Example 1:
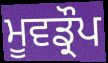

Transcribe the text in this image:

ਮੂਵਡ੍ਰੌਪ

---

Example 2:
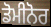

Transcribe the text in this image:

ਡੋਮੀਨੋਰ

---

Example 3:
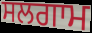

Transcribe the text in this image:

ਸਲਗਾਮ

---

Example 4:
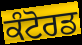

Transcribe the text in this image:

ਕੰਟੋਰਡ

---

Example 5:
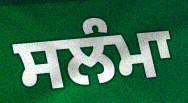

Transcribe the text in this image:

ਸਲੰਮਾ